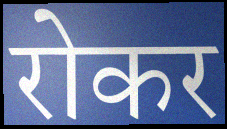
रोकर